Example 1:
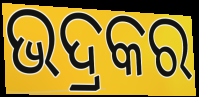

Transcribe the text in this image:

ଭଦ୍ରକର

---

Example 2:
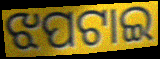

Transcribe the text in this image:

ଝପଟାଇ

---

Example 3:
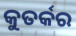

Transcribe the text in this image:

କୁତର୍କର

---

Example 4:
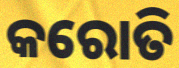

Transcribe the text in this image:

କରୋତି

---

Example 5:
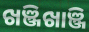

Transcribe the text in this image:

ଖଞ୍ଜିଖାଞ୍ଜି